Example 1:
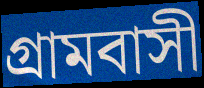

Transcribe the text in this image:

গ্রামবাসী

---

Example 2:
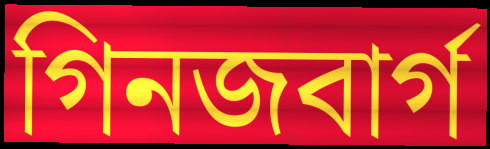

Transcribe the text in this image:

গিনজবার্গ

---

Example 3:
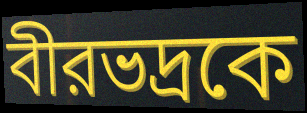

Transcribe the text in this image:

বীরভদ্রকে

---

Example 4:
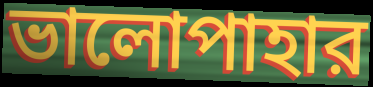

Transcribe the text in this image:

ভালোপাহার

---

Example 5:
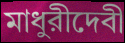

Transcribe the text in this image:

মাধুরীদেবী